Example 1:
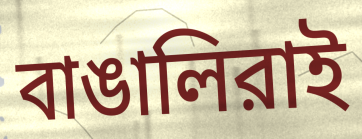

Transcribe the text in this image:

বাঙালিরাই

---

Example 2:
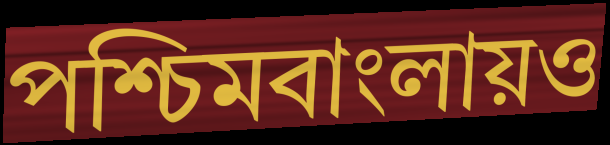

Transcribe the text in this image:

পশ্চিমবাংলায়ও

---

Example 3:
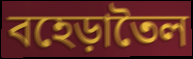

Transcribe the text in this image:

বহেড়াতৈল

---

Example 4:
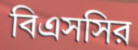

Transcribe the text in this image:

বিএসসির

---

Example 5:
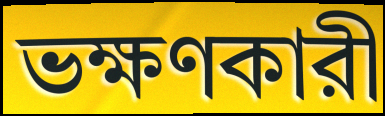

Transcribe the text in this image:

ভক্ষণকারী